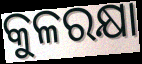
କୁଳରକ୍ଷା